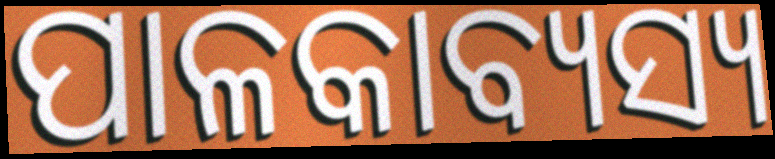
ପାଳକାବ୍ୟସ୍ୟ